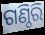
ଗଣ୍ଠିରି